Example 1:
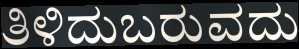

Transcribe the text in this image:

ತಿಳಿದುಬರುವದು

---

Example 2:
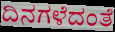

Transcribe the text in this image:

ದಿನಗಳೆದಂತೆ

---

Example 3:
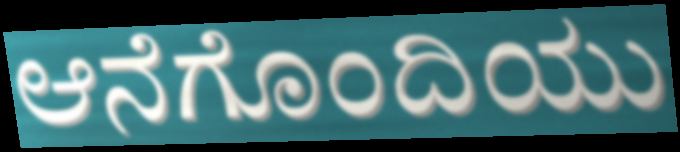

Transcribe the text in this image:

ಆನೆಗೊಂದಿಯು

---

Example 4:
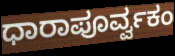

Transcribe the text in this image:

ಧಾರಾಪೂರ್ವ್ವಕಂ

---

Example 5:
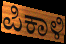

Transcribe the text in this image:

ಪಿಕಾಳಿ